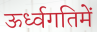
ऊर्ध्वगतिमें